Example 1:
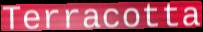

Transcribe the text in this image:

Terracotta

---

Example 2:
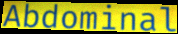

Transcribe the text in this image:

Abdominal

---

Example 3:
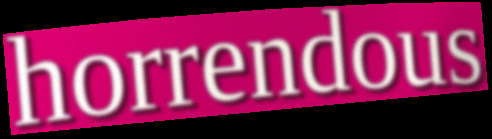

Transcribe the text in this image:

horrendous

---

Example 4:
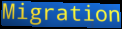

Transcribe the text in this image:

Migration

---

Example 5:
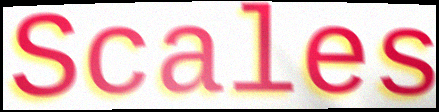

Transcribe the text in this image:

Scales